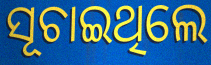
ସୂଚାଇଥିଲେ